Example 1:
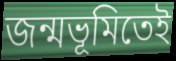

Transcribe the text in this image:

জন্মভূমিতেই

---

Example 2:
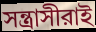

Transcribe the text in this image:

সন্ত্রাসীরাই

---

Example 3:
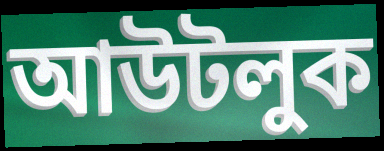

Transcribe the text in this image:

আউটলুক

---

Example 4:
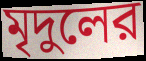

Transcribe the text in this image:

মৃদুলের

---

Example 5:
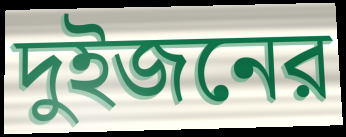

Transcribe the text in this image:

দুইজনের